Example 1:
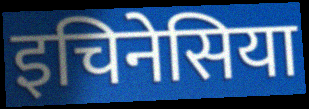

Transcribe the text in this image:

इचिनेसिया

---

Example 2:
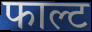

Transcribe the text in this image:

फाल्ट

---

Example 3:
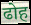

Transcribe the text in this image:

ढोह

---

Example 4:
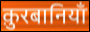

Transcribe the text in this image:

क़ुरबानियाँ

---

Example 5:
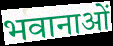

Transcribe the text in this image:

भवानाओं